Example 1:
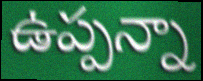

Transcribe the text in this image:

ఉప్పన్నా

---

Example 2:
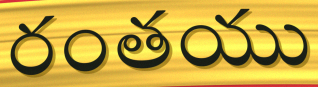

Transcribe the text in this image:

రంతయు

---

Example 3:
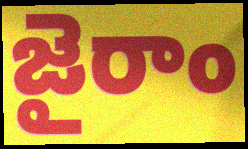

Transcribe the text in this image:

జైరాం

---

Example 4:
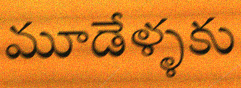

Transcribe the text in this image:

మూడేళ్ళకు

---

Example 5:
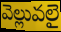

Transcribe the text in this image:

వెల్లువలై